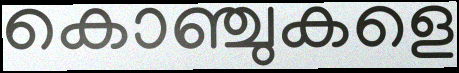
കൊഞ്ചുകളെ